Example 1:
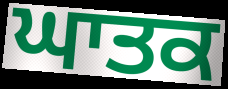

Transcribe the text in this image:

ਘਾਤਕ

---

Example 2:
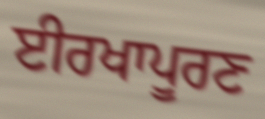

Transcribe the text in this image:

ਈਰਖਾਪੂਰਣ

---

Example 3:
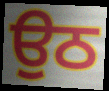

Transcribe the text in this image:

ਉਠ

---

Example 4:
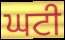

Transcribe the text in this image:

ਘਟੀ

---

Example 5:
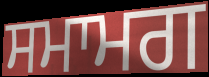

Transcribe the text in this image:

ਸਮਾਮਗ